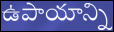
ఉపాయాన్ని